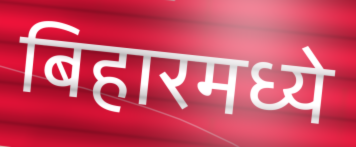
बिहारमध्ये